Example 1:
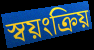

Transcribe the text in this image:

স্বয়ংক্রিয়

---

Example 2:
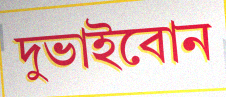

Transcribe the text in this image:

দুভাইবোন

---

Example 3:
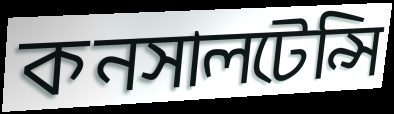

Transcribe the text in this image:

কনসালটেন্সি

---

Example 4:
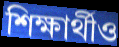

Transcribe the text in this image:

শিক্ষার্থীও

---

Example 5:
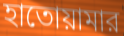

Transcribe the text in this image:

হাতোয়ামার